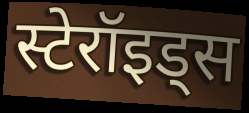
स्टेरॉइड्स